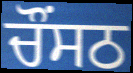
ਚੌਂਸਠ